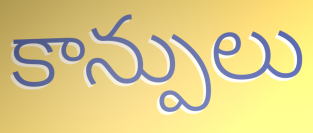
కాన్పులు